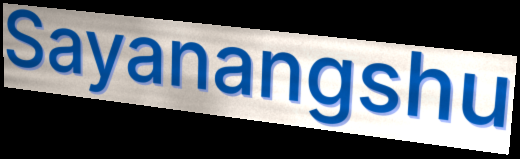
Sayanangshu